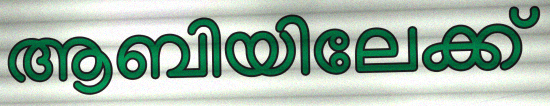
ആബിയിലേക്ക്